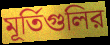
মূর্তিগুলির